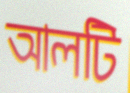
আলটি